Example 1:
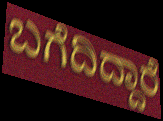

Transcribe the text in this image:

ಬಗೆದಿದ್ದಾರೆ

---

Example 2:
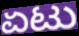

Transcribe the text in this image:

ಏಟು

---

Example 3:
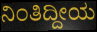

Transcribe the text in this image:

ನಿಂತಿದ್ದೀಯ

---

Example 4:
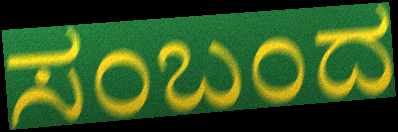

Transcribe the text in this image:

ಸಂಬಂದ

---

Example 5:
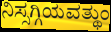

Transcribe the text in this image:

ನಿಸ್ಸಗ್ಗಿಯವತ್ಥುಂ